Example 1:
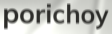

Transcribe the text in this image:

porichoy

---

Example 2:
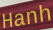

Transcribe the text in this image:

Hanh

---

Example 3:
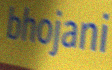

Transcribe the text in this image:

bhojani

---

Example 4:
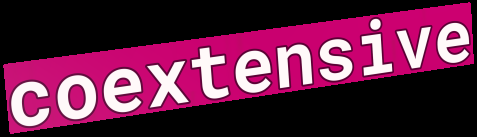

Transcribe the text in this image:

coextensive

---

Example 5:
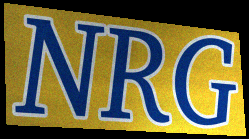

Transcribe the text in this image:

NRG